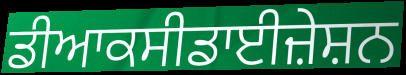
ਡੀਆਕਸੀਡਾਈਜ਼ੇਸ਼ਨ